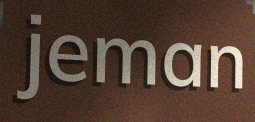
jeman